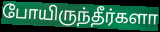
போயிருந்தீர்களா